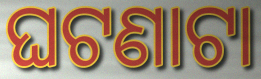
ଘଟଣାଟା